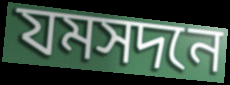
যমসদনে